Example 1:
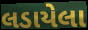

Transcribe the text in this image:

લડાયેલા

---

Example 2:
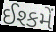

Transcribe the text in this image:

ઈશ્કમેં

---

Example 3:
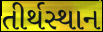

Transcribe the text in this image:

તીર્થસ્થાન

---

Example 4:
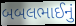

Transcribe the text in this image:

બબલભાઈનું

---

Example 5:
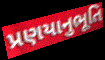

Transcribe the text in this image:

પ્રણયાનુભૂતિ